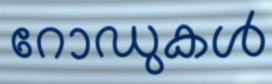
റോഡുകൾ